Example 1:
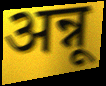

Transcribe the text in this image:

अन्नू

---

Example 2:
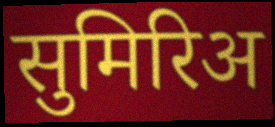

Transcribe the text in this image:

सुमिरिअ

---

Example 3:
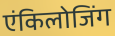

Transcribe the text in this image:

एंकिलोजिंग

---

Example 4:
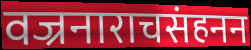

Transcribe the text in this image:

वज्रनाराचसंहनन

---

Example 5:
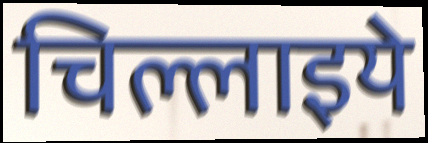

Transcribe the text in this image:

चिल्लाइये